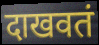
दाखवतं